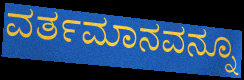
ವರ್ತಮಾನವನ್ನೂ